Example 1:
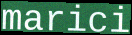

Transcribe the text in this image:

marici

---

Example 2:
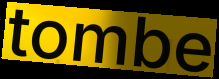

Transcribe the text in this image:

tombe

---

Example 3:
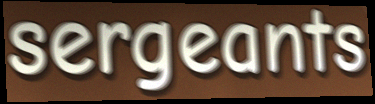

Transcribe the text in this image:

sergeants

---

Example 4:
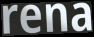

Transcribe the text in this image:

rena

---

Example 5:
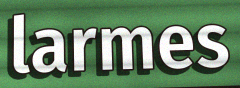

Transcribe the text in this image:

larmes